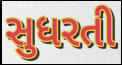
સુધરતી